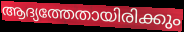
ആദ്യത്തേതായിരിക്കും